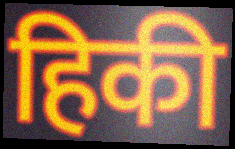
हिकी